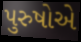
પુરુષોએ